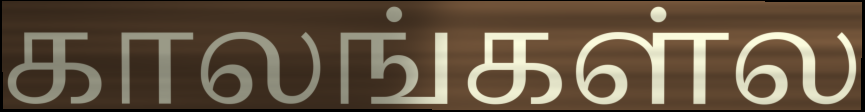
காலங்கள்ல